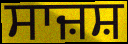
ਸਾਜ਼ਸ਼